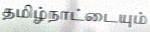
தமிழ்நாட்டையும்